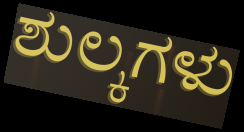
ಶುಲ್ಕಗಳು